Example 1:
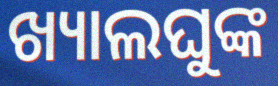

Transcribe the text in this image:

ଖ୍ୟାଲଘୁଙ୍କ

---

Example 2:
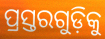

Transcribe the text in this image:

ପ୍ରସ୍ତରଗୁଡ଼ିକୁ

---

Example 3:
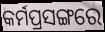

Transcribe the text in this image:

କର୍ମପ୍ରସଙ୍ଗରେ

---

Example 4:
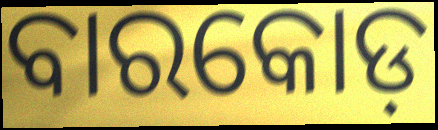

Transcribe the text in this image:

ବାରକୋଡ଼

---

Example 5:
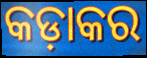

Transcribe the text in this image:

କଡ଼ାକର